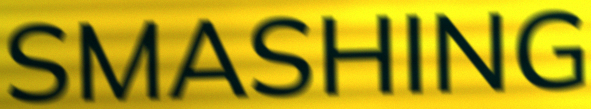
SMASHING